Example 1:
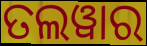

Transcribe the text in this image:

ତଲୱାର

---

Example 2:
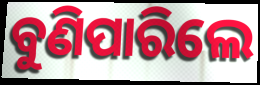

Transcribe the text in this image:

ବୁଣିପାରିଲେ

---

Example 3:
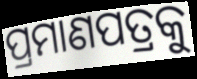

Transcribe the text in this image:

ପ୍ରମାଣପତ୍ରକୁ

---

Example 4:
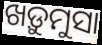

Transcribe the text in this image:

ଖଡ଼ୁମୁସା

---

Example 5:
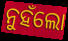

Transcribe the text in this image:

ନୁହଁଲୋ